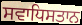
ਸਵਾਧਿਸਤਾਨ